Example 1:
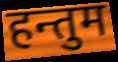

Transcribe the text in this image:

हन्तुम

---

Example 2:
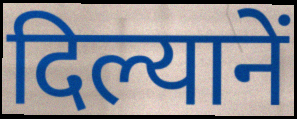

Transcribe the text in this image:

दिल्यानें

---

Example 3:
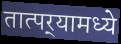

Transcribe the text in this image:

तात्पर्यामध्ये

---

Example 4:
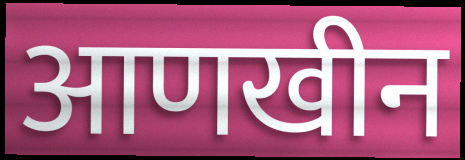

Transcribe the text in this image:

आणखीन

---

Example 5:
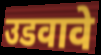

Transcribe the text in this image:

उडवावे